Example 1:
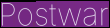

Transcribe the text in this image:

Postwar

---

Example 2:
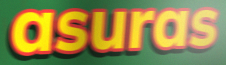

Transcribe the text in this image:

asuras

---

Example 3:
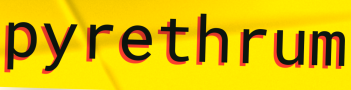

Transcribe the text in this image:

pyrethrum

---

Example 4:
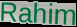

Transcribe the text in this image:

Rahim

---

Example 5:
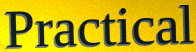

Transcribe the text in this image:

Practical